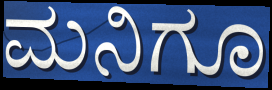
ಮನಿಗೂ